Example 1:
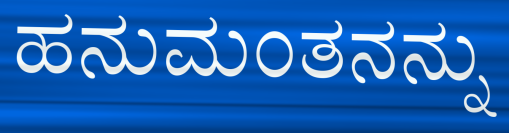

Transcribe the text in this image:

ಹನುಮಂತನನ್ನು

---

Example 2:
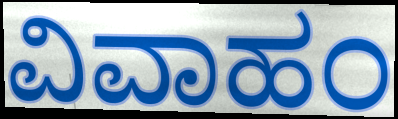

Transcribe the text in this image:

ವಿವಾಹಂ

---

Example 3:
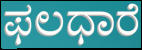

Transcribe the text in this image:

ಫಲಧಾರೆ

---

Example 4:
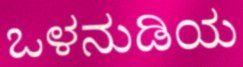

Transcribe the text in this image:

ಒಳನುಡಿಯ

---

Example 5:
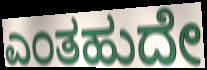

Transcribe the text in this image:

ಎಂತಹುದೇ